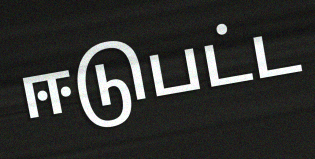
ஈடுபட்ட